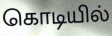
கொடியில்